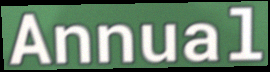
Annual